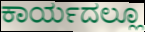
ಕಾರ್ಯದಲ್ಲೂ